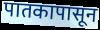
पातकापासून